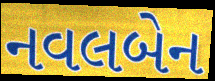
નવલબેન